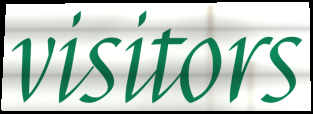
visitors